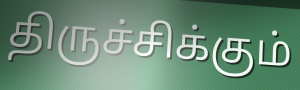
திருச்சிக்கும்